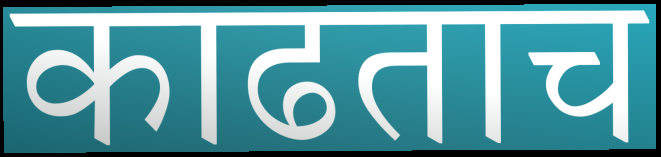
काढताच